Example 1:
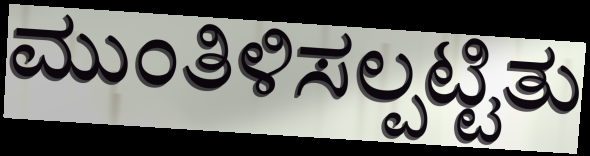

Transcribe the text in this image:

ಮುಂತಿಳಿಸಲ್ಪಟ್ಟಿತು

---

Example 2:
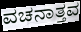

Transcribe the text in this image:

ವಚನಾತ್ತವ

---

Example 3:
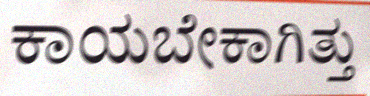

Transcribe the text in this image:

ಕಾಯಬೇಕಾಗಿತ್ತು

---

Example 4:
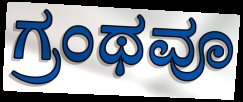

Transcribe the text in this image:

ಗ್ರಂಥವೂ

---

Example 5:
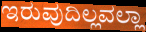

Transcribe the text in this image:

ಇರುವುದಿಲ್ಲವಲ್ಲಾ